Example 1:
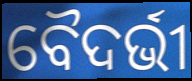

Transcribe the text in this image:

ବୈଦର୍ଭୀ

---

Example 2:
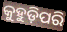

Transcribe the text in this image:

କୁହୁଡ଼ିପରି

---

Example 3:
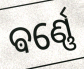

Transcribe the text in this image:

ଵର୍ଣ୍ଣେ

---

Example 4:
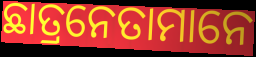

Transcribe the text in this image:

ଛାତ୍ରନେତାମାନେ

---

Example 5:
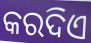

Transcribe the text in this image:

କରଦିଏ